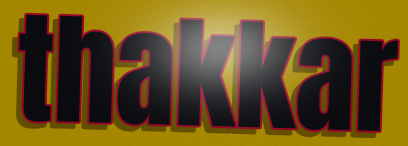
thakkar